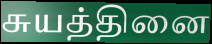
சுயத்தினை